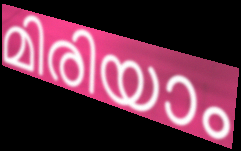
മിരിയാം